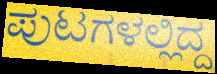
ಪುಟಗಳಲ್ಲಿದ್ದ